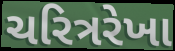
ચરિત્રરેખા